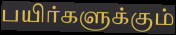
பயிர்களுக்கும்